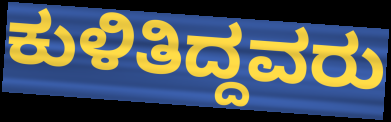
ಕುಳಿತಿದ್ದವರು